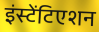
इंस्टेंटिएशन